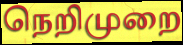
நெறிமுறை